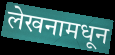
लेखनामधून